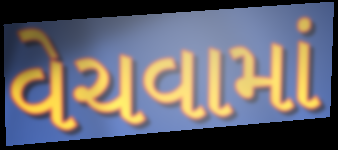
વેચવામાં